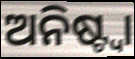
ଅନିଷ୍ଟ୍ୱା